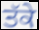
ਤੱਕੇ